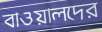
বাওয়ালদের